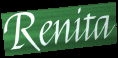
Renita